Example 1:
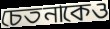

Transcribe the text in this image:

চেতনাকেও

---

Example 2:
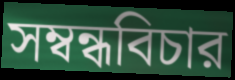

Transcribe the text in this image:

সম্বন্ধবিচার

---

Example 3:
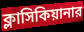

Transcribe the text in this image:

ক্লাসিকিয়ানার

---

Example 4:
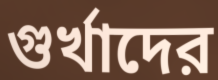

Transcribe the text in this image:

গুর্খাদের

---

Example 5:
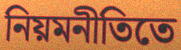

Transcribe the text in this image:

নিয়মনীতিতে